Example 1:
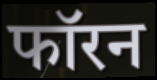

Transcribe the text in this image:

फॉरन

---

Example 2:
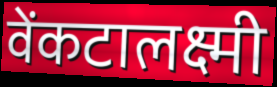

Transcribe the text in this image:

वेंकटालक्ष्मी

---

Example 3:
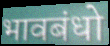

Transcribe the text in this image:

भावबंधो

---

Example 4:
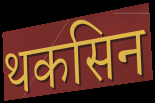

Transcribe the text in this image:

थकसिन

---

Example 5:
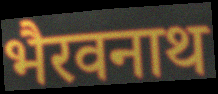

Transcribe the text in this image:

भैरवनाथ